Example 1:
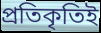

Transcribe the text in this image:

প্রতিকৃতিই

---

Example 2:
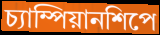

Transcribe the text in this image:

চ্যাম্পিয়ানশিপে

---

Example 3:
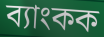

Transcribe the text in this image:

ব্যাংকক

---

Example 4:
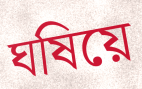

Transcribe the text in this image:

ঘষিয়ে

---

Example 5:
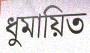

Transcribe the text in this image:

ধুমায়িত